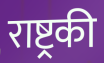
राष्ट्रकी